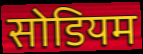
सोडियम